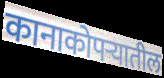
कानाकोपऱ्यातील